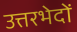
उत्तरभेदों